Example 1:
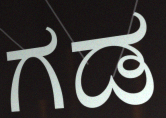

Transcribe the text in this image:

ಗಡ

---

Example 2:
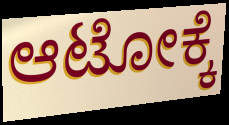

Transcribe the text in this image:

ಆಟೋಕ್ಕೆ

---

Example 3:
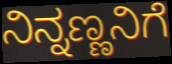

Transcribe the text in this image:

ನಿನ್ನಣ್ಣನಿಗೆ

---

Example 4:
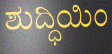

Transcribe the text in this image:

ಶುದ್ಧಿಯಿಂ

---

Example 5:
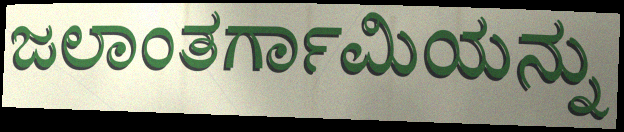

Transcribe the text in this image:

ಜಲಾಂತರ್ಗಾಮಿಯನ್ನು